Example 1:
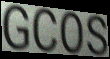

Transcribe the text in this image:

GCOS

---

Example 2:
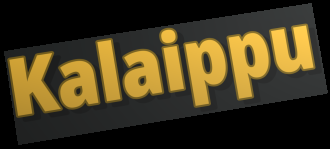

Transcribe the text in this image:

Kalaippu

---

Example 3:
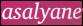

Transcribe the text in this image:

asalyane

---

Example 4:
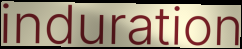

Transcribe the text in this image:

induration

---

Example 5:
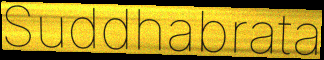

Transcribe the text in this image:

Suddhabrata